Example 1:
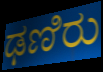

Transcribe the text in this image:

ಢಣಿರು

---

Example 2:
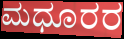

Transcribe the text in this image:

ಮಧೂರರ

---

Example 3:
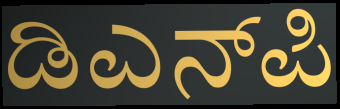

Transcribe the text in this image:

ಡಿಎನ್‌ಪಿ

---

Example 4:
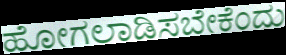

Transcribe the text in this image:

ಹೋಗಲಾಡಿಸಬೇಕೆಂದು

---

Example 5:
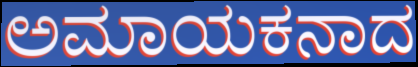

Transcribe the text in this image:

ಅಮಾಯಕನಾದ